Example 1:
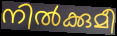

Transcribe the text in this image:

നിൽക്കുമീ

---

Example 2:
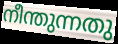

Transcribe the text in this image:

നീന്തുന്നതു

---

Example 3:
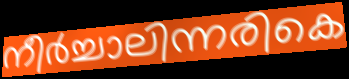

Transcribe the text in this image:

നീർച്ചാലിന്നരികെ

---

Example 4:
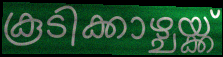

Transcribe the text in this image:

കൂടിക്കാഴ്ചയ്ക്ക്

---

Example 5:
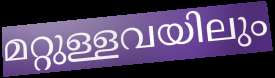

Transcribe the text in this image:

മറ്റുള്ളവയിലും